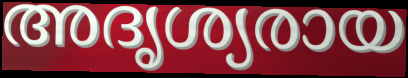
അദൃശ്യരായ